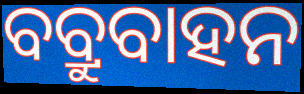
ବବ୍ରୁବାହନ